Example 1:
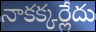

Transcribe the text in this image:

నాకక్కర్లేదు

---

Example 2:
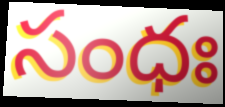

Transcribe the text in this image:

సంధః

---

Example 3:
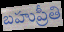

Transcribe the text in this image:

బహుప్రీతి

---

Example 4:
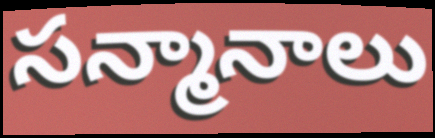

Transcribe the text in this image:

సన్మానాలు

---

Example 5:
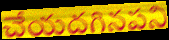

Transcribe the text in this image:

చేయదగినపని